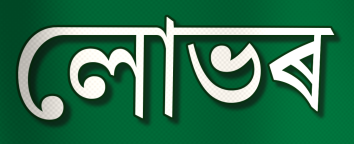
লোভৰ